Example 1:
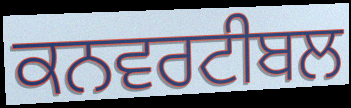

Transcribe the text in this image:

ਕਨਵਰਟੀਬਲ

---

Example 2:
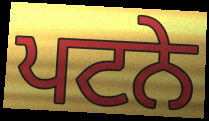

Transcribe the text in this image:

ਪਟਨੇ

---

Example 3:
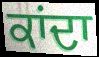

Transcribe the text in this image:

ਕਾਂਦਾ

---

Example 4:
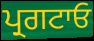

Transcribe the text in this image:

ਪ੍ਰਗਟਾਓ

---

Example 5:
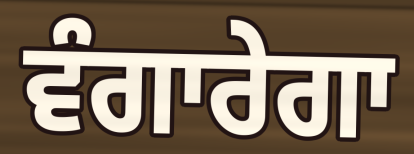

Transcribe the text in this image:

ਵੰਗਾਰੇਗਾ